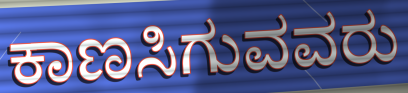
ಕಾಣಸಿಗುವವರು